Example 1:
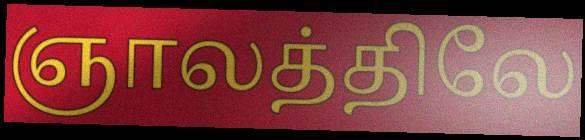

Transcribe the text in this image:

ஞாலத்திலே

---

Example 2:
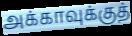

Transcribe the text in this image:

அக்காவுக்குத்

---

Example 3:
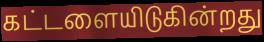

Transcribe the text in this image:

கட்டளையிடுகின்றது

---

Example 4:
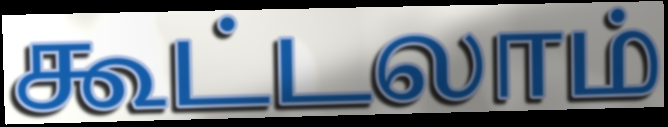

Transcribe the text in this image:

கூட்டலாம்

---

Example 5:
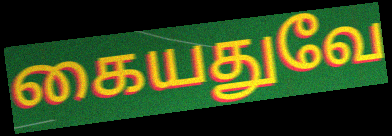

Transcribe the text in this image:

கையதுவே